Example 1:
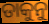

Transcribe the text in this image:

ଡାକୁନୁ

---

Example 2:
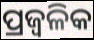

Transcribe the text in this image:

ପ୍ରଜ୍ଵଳିକ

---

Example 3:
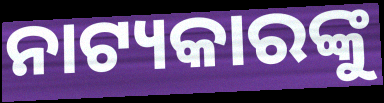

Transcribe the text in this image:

ନାଟ୍ୟକାରଙ୍କୁ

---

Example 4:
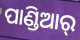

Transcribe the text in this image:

ପାଣ୍ଡିଆର୍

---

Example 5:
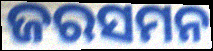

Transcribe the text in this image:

ଜରସମନ